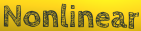
Nonlinear